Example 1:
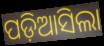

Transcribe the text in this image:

ପଡ଼ିଆସିଲା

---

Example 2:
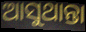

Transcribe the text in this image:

ଆସୁଥାନ୍ତା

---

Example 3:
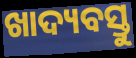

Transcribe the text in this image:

ଖାଦ୍ୟବସ୍ତୁ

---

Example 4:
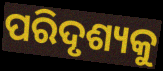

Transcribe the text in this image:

ପରିଦୃଶ୍ୟକୁ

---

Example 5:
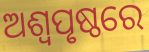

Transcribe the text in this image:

ଅଶ୍ଵପୃଷ୍ଠରେ